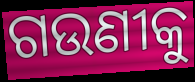
ଗଉଣୀକୁ